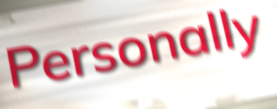
Personally